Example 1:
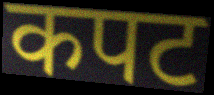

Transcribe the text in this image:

कपट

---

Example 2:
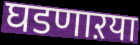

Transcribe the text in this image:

घडणाऱया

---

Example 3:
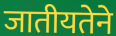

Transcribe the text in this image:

जातीयतेने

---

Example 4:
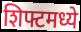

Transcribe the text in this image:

शिफ्टमध्ये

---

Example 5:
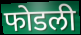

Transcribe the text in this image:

फोडली